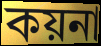
কয়না